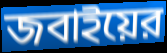
জবাইয়ের